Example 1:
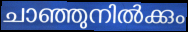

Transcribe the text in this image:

ചാഞ്ഞുനിൽക്കും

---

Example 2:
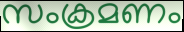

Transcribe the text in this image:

സംക്രമണം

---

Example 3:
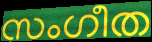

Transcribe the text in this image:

സംഗീത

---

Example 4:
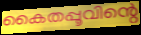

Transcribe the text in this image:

കൈതപ്പൂവിന്റെ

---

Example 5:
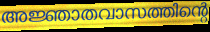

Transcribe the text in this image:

അജ്ഞാതവാസത്തിന്റെ